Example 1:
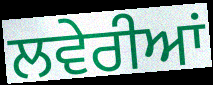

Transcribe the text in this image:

ਲਵੇਰੀਆਂ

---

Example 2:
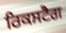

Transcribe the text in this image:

ਰਿਕਸਟੈਗ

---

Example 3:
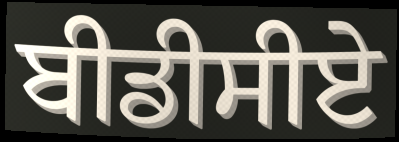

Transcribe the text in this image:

ਬੀਡੀਸੀਏ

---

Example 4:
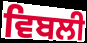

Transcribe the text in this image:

ਵਿਬਲੀ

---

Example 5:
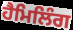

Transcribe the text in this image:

ਹੈਮਿਲਿੰਗ